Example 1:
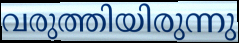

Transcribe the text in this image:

വരുത്തിയിരുന്നു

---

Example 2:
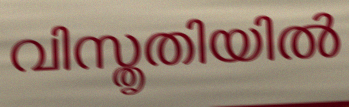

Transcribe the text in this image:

വിസ്തൃതിയിൽ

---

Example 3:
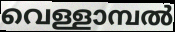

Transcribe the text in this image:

വെള്ളാമ്പൽ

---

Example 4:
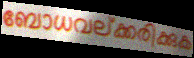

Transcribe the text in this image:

ബോധവല്ക്കരിക്കുക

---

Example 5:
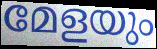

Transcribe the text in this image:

മേളയും